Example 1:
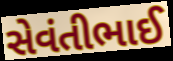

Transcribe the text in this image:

સેવંતીભાઈ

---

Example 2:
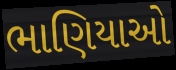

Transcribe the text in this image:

ભાણિયાઓ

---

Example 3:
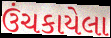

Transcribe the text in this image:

ઉંચકાયેલા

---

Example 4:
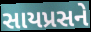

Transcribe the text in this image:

સાયપ્રસને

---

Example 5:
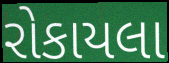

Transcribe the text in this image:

રોકાયલા